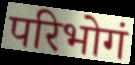
परिभोगं